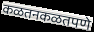
कळतनकळतपणे